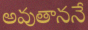
అవుతాననే